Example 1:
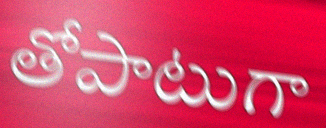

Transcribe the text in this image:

తోపాటుగా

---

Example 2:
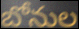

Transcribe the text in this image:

బోనుల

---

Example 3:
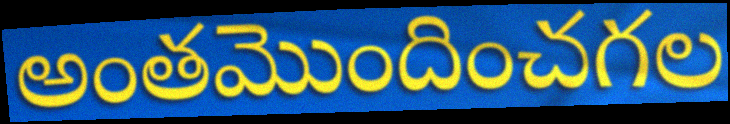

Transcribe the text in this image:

అంతమొందించగల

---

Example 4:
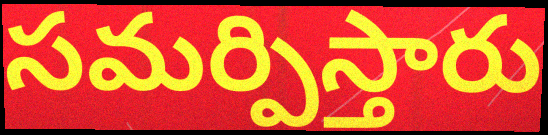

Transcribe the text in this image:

సమర్పిస్తారు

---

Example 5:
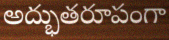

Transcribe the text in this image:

అద్భుతరూపంగా